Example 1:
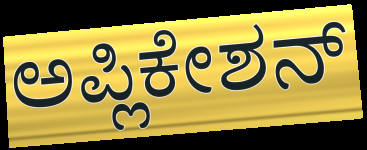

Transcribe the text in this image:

ಅಪ್ಲಿಕೇಶನ್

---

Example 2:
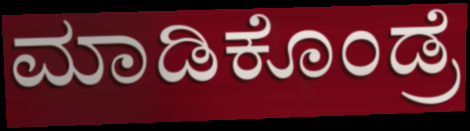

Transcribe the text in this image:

ಮಾಡಿಕೊಂಡ್ರೆ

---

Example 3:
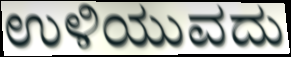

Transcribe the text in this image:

ಉಳಿಯುವದು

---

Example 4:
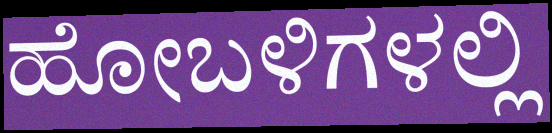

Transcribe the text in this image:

ಹೋಬಳಿಗಳಲ್ಲಿ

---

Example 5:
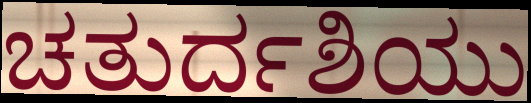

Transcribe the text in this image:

ಚತುರ್ದಶಿಯು